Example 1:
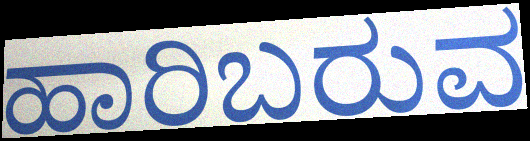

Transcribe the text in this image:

ಹಾರಿಬರುವ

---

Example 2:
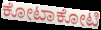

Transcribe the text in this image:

ಕೋಟಾಕೋಟಿ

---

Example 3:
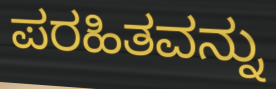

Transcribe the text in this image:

ಪರಹಿತವನ್ನು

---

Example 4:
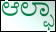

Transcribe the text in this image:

ಆಲ್ಫಾ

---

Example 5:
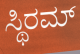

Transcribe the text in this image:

ಸ್ಥಿರಮ್